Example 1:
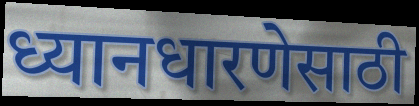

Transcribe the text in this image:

ध्यानधारणेसाठी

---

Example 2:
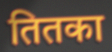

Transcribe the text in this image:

तितका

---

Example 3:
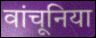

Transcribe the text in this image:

वांचूनिया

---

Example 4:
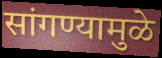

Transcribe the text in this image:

सांगण्यामुळे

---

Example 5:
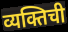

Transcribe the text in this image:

व्यक्तिची